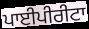
ਪਾਈਪੀਰੀਟਾ